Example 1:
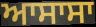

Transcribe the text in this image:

ਆਸਾਸਾ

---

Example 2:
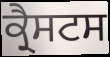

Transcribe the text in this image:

ਕ੍ਰੈਸਟਸ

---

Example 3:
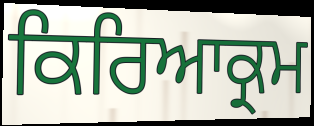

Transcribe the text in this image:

ਕਿਰਿਆਕ੍ਰਮ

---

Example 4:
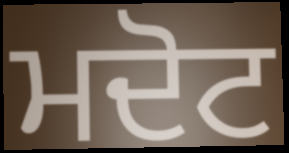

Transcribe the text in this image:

ਮਦੋਟ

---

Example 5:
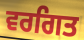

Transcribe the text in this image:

ਵਰਗਿਤ